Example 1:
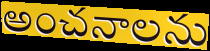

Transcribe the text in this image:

అంచనాలను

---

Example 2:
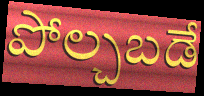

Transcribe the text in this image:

పోల్చబడే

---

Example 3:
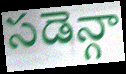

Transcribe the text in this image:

సడెన్గా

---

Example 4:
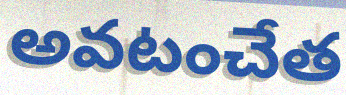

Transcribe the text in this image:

అవటంచేత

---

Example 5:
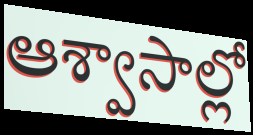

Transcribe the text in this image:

ఆశ్వాసాల్లో